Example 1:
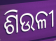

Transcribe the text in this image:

ଶିଉଳୀ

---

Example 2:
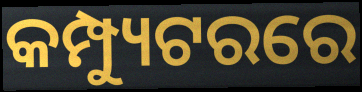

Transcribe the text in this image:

କମ୍ପ୍ୟୁଟରରେ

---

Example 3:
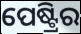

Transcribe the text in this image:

ପେଷ୍ଟ୍ରିର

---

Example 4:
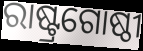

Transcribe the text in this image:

ରାଷ୍ଟ୍ରଗୋଷ୍ଠୀ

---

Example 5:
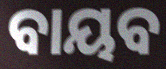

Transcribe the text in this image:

ବାୟବ